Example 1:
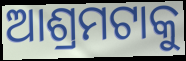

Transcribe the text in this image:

ଆଶ୍ରମଟାକୁ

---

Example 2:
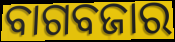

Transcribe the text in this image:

ବାଗବଜାର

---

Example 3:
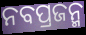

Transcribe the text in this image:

ନବପ୍ରଜନ୍ମ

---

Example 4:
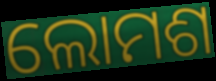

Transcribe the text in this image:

ଲୋମଶ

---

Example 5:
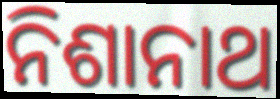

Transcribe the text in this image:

ନିଶାନାଥ